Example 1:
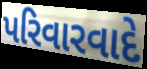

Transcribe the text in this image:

પરિવારવાદે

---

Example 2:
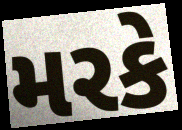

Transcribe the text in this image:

મરકે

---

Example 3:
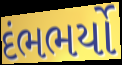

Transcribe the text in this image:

દંભભર્યો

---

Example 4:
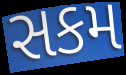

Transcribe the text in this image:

સકમ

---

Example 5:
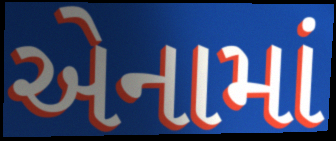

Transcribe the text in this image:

એનામાં